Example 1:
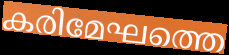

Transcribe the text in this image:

കരിമേഘത്തെ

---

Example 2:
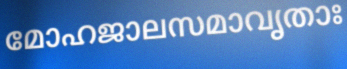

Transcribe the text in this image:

മോഹജാലസമാവൃതാഃ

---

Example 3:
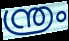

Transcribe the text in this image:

ന്ത്രം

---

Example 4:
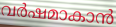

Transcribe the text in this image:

വർഷമാകാൻ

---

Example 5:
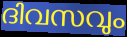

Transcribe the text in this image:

ദിവസവും